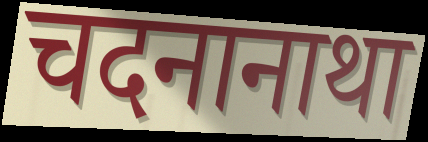
चदनानाथा